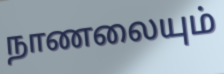
நாணலையும்